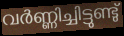
വർണ്ണിച്ചിട്ടുണ്ടു്